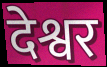
देश्वर